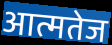
आत्मतेज